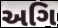
અગિ